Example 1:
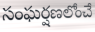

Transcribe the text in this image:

సంఘర్షణలోంచే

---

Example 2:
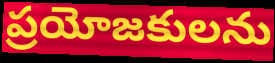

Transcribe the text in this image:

ప్రయోజకులను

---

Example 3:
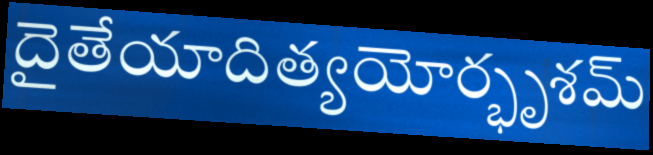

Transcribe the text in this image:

దైతేయాదిత్యయోర్భృశమ్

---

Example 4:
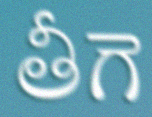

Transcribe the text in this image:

తీగె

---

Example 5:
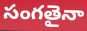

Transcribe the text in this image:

సంగతైనా